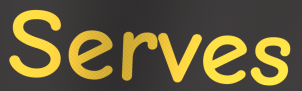
Serves